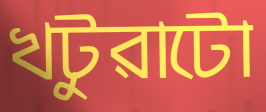
খটুৱাটো